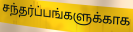
சந்தர்ப்பங்களுக்காக